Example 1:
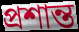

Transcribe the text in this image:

প্রশান্ত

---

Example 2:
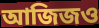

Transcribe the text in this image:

আজিজও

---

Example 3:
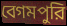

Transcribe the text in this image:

বেগমপুরি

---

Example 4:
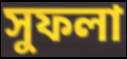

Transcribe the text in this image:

সুফলা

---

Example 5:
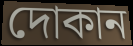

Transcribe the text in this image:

দোকান